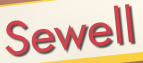
Sewell